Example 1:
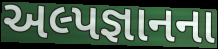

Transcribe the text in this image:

અલ્પજ્ઞાનના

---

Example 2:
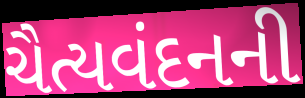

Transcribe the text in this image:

ચૈત્યવંદનની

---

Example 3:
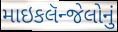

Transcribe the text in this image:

માઇકલૅન્જેલોનું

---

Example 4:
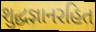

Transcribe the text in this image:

શુદ્ધજ્ઞાનરહિત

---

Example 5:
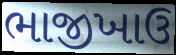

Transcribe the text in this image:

ભાજીખાઉ